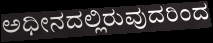
ಅಧೀನದಲ್ಲಿರುವುದರಿಂದ